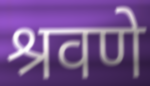
श्रवणे